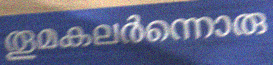
തൂമകലർന്നൊരു